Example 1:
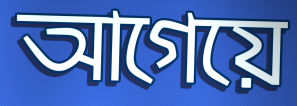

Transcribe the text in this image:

আগেয়ে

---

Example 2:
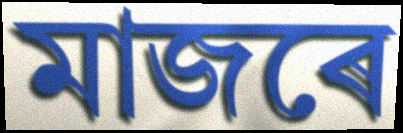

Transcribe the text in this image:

মাজৰে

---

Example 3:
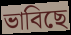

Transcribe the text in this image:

ভাবিছে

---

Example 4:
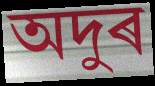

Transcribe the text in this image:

অদুৰ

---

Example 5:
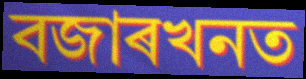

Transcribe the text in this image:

বজাৰখনত